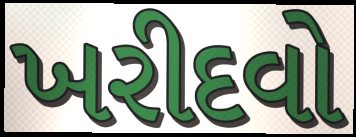
ખરીદવો